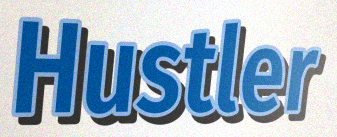
Hustler